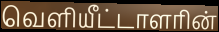
வெளியீட்டாளரின்